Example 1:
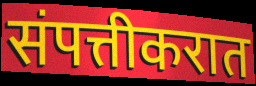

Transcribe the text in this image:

संपत्तीकरात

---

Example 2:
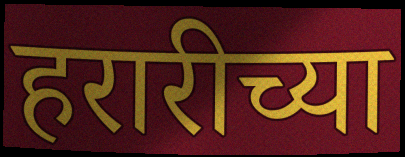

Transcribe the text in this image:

हरारीच्या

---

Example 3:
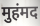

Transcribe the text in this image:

मुहंमद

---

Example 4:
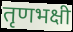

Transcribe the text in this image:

तृणभक्षी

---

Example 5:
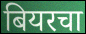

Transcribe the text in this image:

बियरचा